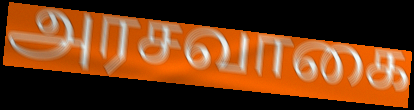
அரசவாகை